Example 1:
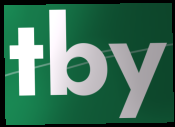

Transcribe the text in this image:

tby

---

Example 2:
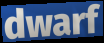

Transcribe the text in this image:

dwarf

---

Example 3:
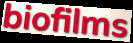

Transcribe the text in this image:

biofilms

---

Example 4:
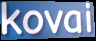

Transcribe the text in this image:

kovai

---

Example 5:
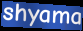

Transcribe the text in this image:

shyama